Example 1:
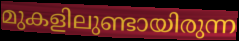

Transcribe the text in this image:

മുകളിലുണ്ടായിരുന്ന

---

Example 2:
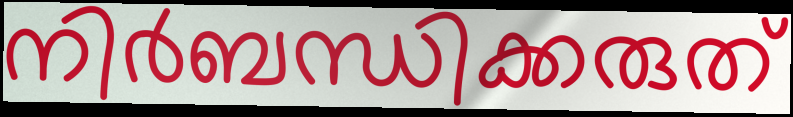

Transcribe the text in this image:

നിർബന്ധിക്കരുത്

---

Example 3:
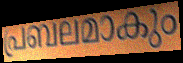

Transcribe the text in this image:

പ്രബലമാകും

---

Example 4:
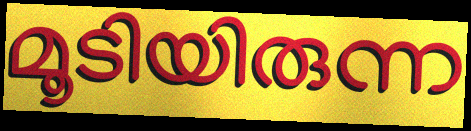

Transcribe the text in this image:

മൂടിയിരുന്ന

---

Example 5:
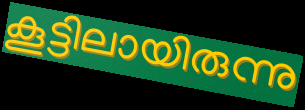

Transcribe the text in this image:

കൂട്ടിലായിരുന്നു